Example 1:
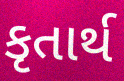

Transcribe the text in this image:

કૃતાર્થ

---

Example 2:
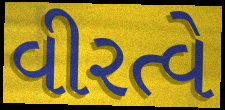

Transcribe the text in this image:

વીરત્વે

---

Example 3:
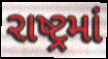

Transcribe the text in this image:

રાષ્ટ્રમાં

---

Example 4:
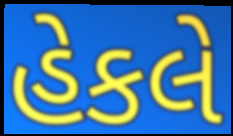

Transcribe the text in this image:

હેકલે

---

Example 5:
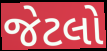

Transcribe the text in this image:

જેટલો